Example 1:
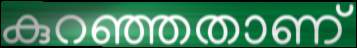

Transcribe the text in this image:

കുറഞ്ഞതാണ്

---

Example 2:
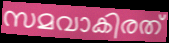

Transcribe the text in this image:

സമവാകിരത്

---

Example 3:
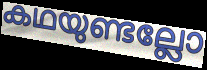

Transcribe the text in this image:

കഥയുണ്ടല്ലോ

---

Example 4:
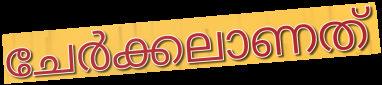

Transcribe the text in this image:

ചേർക്കലാണത്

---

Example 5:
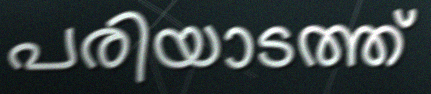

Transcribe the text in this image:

പരിയാടത്ത്